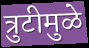
त्रुटीमुळे